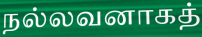
நல்லவனாகத்